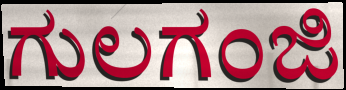
ಗುಲಗಂಜಿ